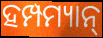
ହମ୍ପମ୍ୟାନ୍